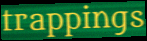
trappings